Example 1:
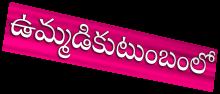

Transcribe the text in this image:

ఉమ్మడికుటుంబంలో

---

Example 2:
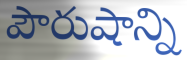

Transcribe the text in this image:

పౌరుషాన్ని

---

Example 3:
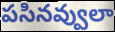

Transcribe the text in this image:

పసినవ్వులా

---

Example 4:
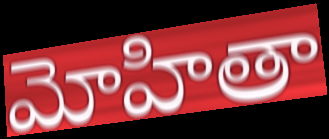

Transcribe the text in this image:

మోహితా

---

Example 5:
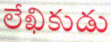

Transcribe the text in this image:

లేఖికుడు